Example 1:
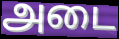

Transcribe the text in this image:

அடை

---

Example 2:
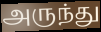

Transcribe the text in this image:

அருந்து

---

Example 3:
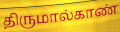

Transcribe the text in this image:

திருமால்காண்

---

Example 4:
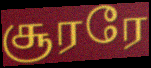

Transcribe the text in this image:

சூரரே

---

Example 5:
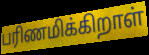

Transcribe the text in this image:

பரிணமிக்கிறாள்